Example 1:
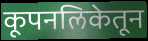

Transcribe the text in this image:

कूपनलिकेतून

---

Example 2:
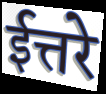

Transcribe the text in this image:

ईत्तरे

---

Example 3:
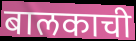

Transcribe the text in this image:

बालकाची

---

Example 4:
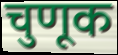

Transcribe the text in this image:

चुणूक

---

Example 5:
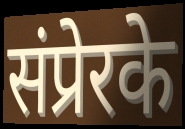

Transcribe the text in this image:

संप्रेरके